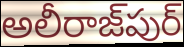
అలీరాజ్‌పుర్